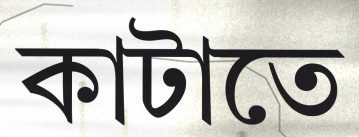
কাটাতে